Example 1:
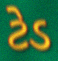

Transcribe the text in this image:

ટેડ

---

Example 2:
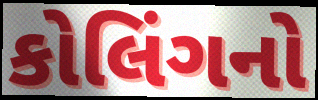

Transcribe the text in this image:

કોલિંગનો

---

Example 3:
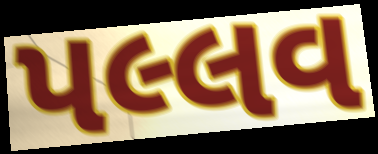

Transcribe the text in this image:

પલ્લવ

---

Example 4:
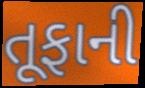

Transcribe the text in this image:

તૂફાની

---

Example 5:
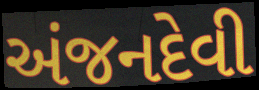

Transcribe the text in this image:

અંજનદેવી